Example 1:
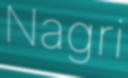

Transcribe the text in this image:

Nagri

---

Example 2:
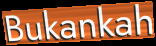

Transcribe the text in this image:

Bukankah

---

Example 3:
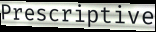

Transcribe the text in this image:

Prescriptive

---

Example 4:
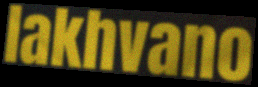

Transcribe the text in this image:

lakhvano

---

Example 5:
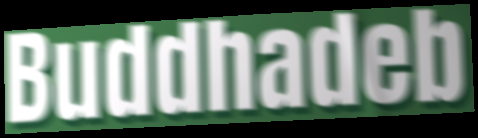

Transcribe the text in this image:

Buddhadeb